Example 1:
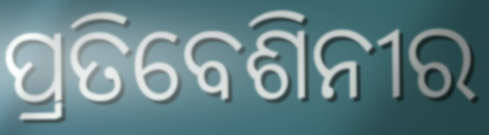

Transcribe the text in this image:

ପ୍ରତିବେଶିନୀର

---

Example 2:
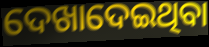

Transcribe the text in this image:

ଦେଖାଦେଇଥିବା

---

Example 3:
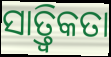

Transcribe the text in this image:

ସାତ୍ତ୍ବିକତା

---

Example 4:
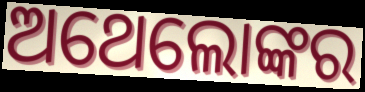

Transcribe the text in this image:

ଅଥେଲୋଙ୍କର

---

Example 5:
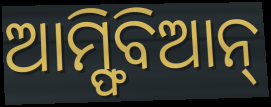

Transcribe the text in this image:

ଆମ୍ଫିବିଆନ୍